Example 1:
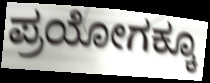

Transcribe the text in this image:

ಪ್ರಯೋಗಕ್ಕೂ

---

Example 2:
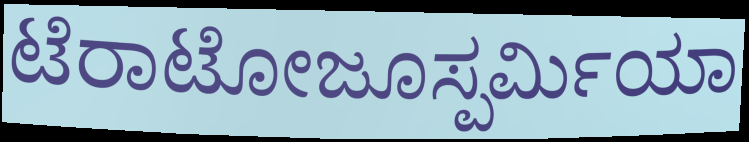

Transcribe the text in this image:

ಟೆರಾಟೋಜೂಸ್ಪರ್ಮಿಯಾ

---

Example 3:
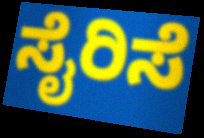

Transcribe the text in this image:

ಸೈರಿಸೆ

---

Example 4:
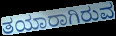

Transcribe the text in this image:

ತಯಾರಾಗಿರುವ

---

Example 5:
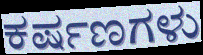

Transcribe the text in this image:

ಕರ್ಷಣಗಳು